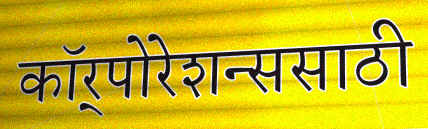
कॉर्पोरेशन्ससाठी